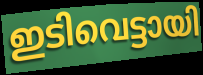
ഇടിവെട്ടായി